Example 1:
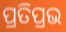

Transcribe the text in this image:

ପ୍ରତିପ୍ରଭ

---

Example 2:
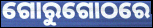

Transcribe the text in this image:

ଗୋରୁଗୋଠରେ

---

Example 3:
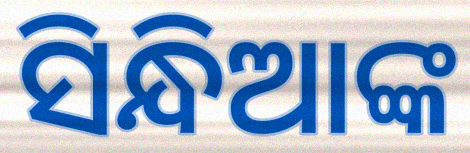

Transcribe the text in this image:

ସିନ୍ଧିଆଙ୍କ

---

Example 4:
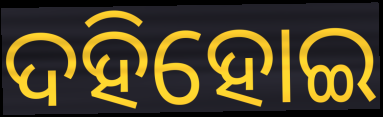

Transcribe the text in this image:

ଦହିହୋଇ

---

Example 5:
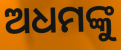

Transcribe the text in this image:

ଅଧମଙ୍କୁ